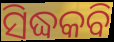
ସିଦ୍ଧକବି